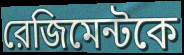
রেজিমেন্টকে